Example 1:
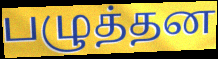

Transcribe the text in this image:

பழுத்தன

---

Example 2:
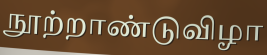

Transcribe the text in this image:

நூற்றாண்டுவிழா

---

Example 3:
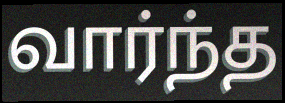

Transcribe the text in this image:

வார்ந்த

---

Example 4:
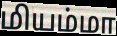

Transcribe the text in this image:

மியம்மா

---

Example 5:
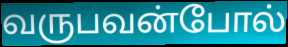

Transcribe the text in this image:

வருபவன்போல்